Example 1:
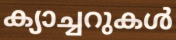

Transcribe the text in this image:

ക്യാച്ചറുകൾ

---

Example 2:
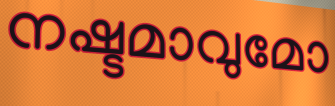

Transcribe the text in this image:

നഷ്ടമാവുമോ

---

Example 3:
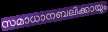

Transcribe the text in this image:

സമാധാനബലിക്കായും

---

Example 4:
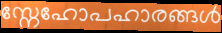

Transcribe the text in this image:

സ്നേഹോപഹാരങ്ങൾ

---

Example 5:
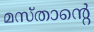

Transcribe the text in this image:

മസ്താന്റെ